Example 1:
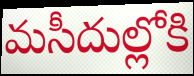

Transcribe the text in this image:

మసీదుల్లోకి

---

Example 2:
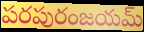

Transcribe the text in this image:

పరపురంజయమ్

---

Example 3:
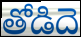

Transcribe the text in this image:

తోడిదె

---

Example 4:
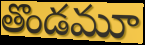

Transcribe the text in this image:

తొండమూ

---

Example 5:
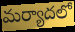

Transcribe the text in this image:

మర్యాదలో